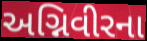
અગ્નિવીરના